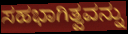
ಸಹಭಾಗಿತ್ವವನ್ನು